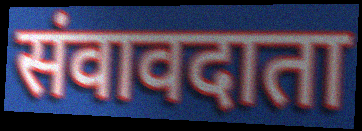
संवावदाता